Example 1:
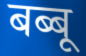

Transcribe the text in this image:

बब्बू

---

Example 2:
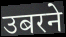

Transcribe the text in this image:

उबरने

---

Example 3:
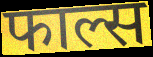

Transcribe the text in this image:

फाल्स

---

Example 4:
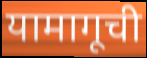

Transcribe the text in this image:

यामागूची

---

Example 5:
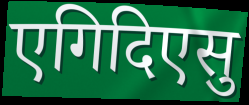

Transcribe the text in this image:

एगिदिएसु